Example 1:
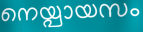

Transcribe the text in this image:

നെയ്പായസം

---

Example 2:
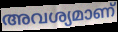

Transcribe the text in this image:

അവശ്യമാണ്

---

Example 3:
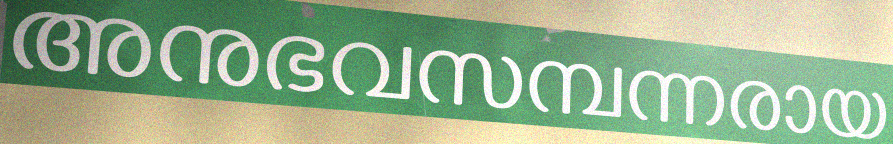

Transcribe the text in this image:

അനുഭവസമ്പന്നരായ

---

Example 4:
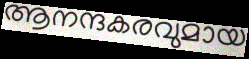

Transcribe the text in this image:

ആനന്ദകരവുമായ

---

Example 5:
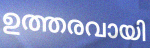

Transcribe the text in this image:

ഉത്തരവായി